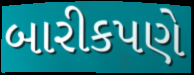
બારીકપણે